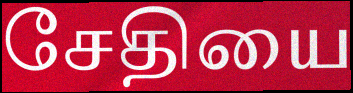
சேதியை